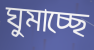
ঘুমাচ্ছে